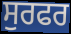
ਸੁਰਫਰ